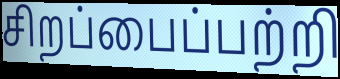
சிறப்பைப்பற்றி